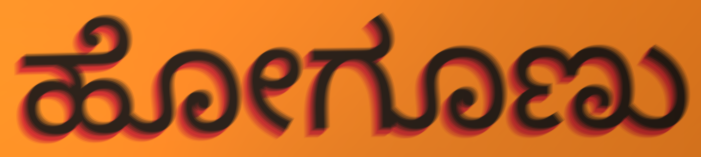
ಹೋಗೂಣು